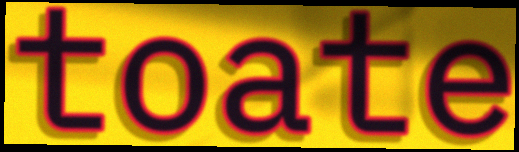
toate